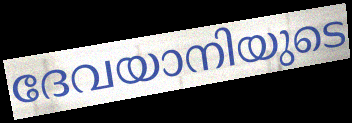
ദേവയാനിയുടെ